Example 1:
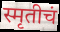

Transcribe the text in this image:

स्मृतीचं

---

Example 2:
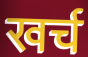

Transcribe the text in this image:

खर्च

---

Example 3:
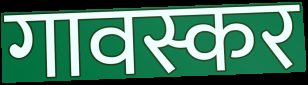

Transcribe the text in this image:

गावस्कर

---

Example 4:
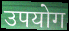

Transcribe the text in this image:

उपयोग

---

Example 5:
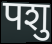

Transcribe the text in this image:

पशु